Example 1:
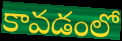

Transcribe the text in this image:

కావడంలో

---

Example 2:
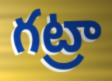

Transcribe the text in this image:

గట్రా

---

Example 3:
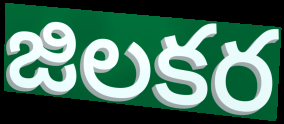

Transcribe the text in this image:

జిలకర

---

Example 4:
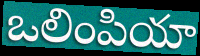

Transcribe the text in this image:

ఒలింపియా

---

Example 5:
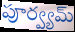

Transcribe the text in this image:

పూర్వ్యమ్